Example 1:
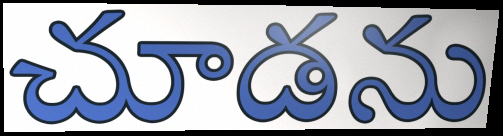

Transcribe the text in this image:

చూడను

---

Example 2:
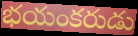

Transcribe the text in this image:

భయంకరుడు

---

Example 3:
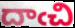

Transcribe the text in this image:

దాఁచి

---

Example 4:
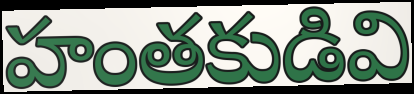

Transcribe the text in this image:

హంతకుడివి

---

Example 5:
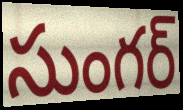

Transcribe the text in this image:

సుంగర్